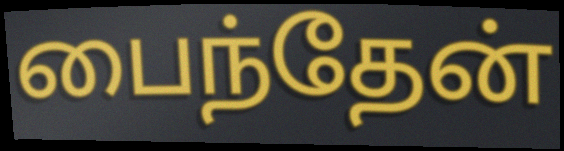
பைந்தேன்